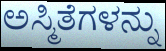
ಅಸ್ಮಿತೆಗಳನ್ನು